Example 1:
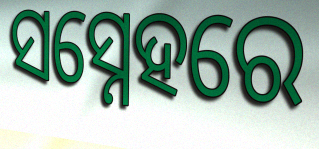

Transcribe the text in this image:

ସସ୍ନେହରେ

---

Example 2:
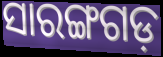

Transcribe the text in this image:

ସାରଙ୍ଗଗଡ଼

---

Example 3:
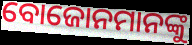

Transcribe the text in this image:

ବୋଜୋନମାନଙ୍କୁ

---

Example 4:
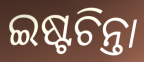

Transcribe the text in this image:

ଇଷ୍ଟଚିନ୍ତା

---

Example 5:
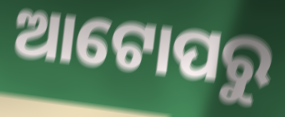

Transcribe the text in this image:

ଆଟୋପରୁ